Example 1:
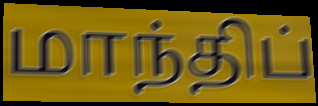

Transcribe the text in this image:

மாந்திப்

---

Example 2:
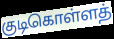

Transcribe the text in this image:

குடிகொள்ளத்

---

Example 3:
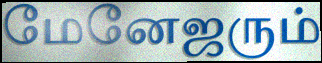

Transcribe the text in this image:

மேனேஜரும்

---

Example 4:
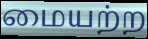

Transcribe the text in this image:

மையற்ற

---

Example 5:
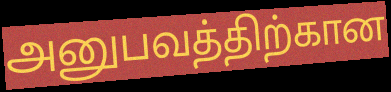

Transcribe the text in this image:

அனுபவத்திற்கான